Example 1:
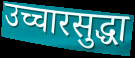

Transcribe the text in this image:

उच्चारसुद्धा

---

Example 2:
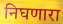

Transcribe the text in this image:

निघणारा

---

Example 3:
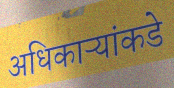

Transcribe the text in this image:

अधिकाऱ्यांकडे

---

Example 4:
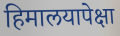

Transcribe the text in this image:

हिमालयापेक्षा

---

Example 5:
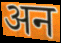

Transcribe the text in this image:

अन